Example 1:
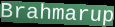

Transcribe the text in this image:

Brahmarup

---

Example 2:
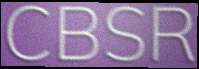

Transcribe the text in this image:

CBSR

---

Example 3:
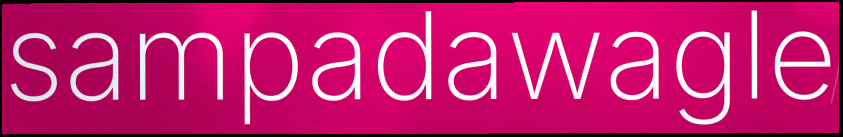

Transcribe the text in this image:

sampadawagle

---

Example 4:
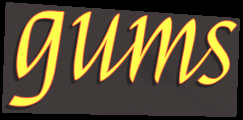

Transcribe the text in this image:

gums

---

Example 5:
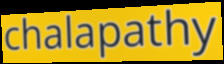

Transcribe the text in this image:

chalapathy